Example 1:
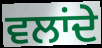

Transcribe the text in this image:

ਵਲਾਂਦੇ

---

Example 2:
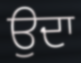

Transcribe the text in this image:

ਉਦਾ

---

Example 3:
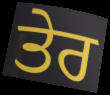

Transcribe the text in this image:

ਤੇਰ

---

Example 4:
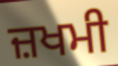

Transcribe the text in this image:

ਜ਼ਖਮੀ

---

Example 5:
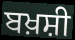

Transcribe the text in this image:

ਬਖ਼ਸ਼ੀ